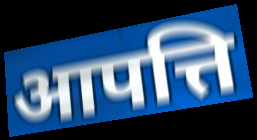
आपत्ति